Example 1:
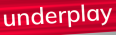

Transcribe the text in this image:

underplay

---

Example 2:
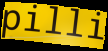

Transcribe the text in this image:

pilli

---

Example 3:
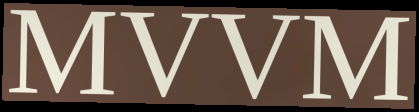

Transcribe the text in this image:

MVVM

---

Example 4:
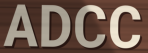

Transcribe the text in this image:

ADCC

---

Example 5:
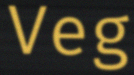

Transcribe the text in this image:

Veg